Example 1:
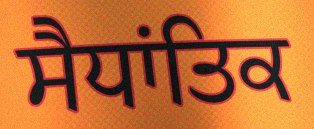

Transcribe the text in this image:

ਸੈਧਾਂਤਿਕ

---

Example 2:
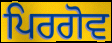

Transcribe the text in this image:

ਪਿਰਗੋਵ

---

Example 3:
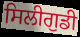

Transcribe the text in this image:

ਸਿਲੀਗੁਡੀ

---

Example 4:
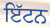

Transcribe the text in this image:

ਇੱਟਨ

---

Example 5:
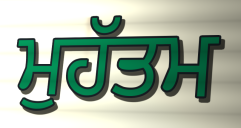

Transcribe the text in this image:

ਮੁਹੱਤਮ